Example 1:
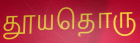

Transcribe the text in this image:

தூயதொரு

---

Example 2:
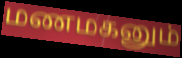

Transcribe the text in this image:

மணமகனும்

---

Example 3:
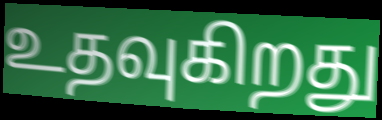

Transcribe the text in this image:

உதவுகிறது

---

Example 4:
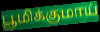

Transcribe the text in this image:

பூமிக்குமாய்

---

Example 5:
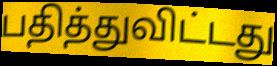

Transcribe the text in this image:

பதித்துவிட்டது